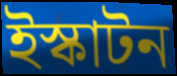
ইস্কাটন